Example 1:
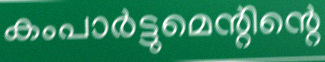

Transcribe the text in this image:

കംപാർട്ടുമെന്റിന്റെ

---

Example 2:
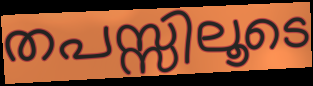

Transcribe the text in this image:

തപസ്സിലൂടെ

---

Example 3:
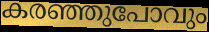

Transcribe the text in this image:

കരഞ്ഞുപോവും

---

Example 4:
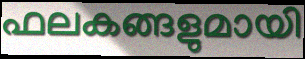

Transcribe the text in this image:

ഫലകങ്ങളുമായി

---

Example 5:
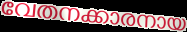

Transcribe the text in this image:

വേതനക്കാരനായ